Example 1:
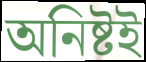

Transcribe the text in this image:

অনিষ্টই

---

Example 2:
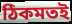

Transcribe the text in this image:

ঠিকমতই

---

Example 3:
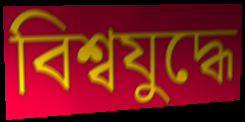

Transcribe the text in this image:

বিশ্বযুদ্ধে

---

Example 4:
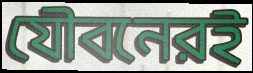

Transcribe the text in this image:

যৌবনেরই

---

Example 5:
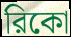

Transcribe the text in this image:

রিকো